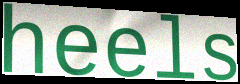
heels